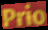
Prio